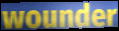
wounder